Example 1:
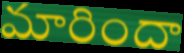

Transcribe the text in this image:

మారిందా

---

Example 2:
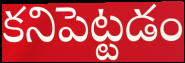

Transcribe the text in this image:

కనిపెట్టడం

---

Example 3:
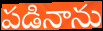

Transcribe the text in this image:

పడినాను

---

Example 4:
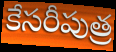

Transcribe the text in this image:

కేసరీపుత్ర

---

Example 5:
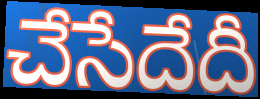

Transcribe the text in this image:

చేసేదేదీ